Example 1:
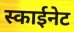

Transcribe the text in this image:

स्काईनेट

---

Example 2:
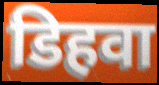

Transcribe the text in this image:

डिहवा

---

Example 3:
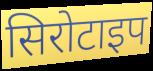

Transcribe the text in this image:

सिरोटाइप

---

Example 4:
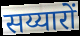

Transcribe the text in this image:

सय्यारों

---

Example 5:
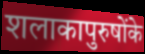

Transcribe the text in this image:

शलाकापुरुषोंके